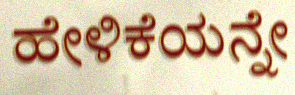
ಹೇಳಿಕೆಯನ್ನೇ